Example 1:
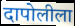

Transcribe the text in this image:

दापोलीला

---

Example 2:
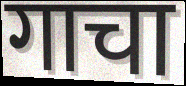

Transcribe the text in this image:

गाचा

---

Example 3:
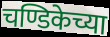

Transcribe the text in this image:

चण्डिकेच्या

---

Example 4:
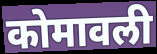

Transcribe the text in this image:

कोमावली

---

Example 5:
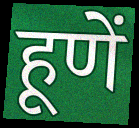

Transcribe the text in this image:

हूणें